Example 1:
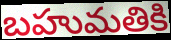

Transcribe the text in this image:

బహుమతికి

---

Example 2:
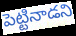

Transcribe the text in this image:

పెట్టినాడని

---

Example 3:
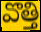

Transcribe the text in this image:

వొత్తి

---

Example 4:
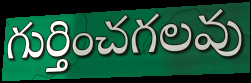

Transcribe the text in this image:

గుర్తించగలవు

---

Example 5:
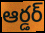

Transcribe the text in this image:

ఆర్డర్